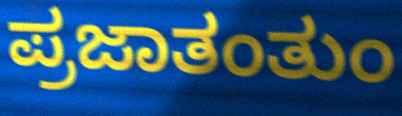
ಪ್ರಜಾತಂತುಂ